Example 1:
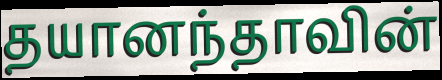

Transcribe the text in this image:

தயானந்தாவின்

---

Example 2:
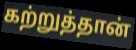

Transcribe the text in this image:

கற்றுத்தான்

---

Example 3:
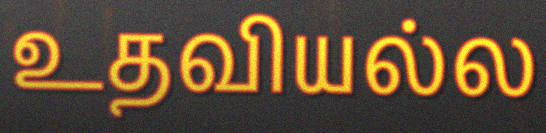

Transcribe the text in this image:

உதவியல்ல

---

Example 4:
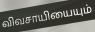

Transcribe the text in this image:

விவசாயியையும்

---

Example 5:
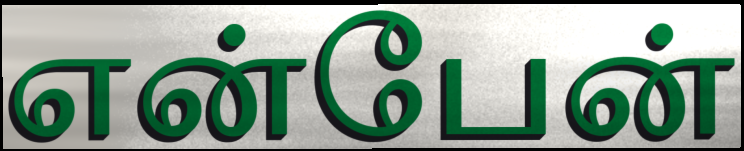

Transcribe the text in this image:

என்பேன்